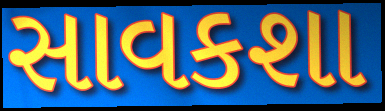
સાવકશા